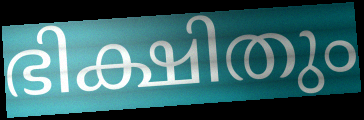
ഭിക്ഷിതും